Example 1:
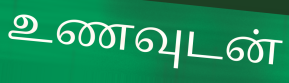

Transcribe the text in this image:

உணவுடன்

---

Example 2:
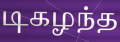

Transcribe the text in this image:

டிகழந்த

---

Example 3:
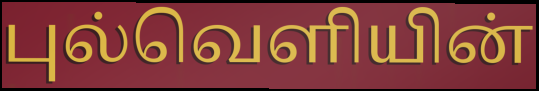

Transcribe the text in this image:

புல்வெளியின்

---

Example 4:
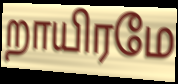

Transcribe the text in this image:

றாயிரமே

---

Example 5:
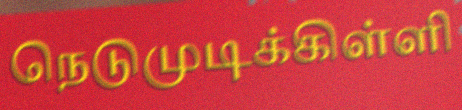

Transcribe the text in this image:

நெடுமுடிக்கிள்ளி